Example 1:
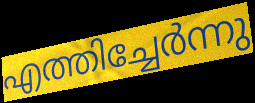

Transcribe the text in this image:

എത്തിച്ചേർന്നു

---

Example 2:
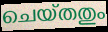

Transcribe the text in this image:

ചെയ്‌തതും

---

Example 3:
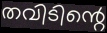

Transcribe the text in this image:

തവിടിന്റെ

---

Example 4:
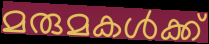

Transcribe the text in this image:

മരുമകൾക്ക്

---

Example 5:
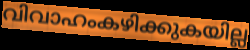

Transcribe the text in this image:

വിവാഹംകഴിക്കുകയില്ല